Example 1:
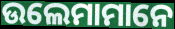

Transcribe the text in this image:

ଉଲେମାମାନେ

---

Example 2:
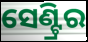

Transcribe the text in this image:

ସେଣ୍ଟ୍ରିର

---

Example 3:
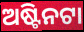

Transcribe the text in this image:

ଅଷ୍ଟିନଟା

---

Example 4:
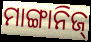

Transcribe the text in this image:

ମାଙ୍ଗାନିଜ୍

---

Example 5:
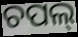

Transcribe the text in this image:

ଚପଲ୍